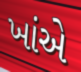
ખાંએ